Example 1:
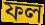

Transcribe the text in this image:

ফল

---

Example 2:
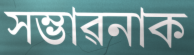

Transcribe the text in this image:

সম্ভাৱনাক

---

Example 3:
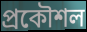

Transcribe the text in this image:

প্ৰকৌশল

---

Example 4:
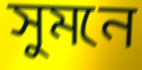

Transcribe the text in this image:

সুমনে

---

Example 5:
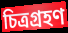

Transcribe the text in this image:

চিত্ৰগ্ৰহণ